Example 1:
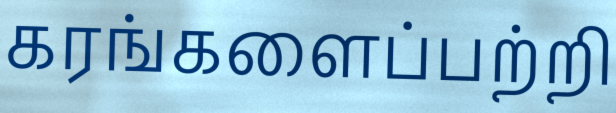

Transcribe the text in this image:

கரங்களைப்பற்றி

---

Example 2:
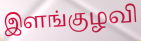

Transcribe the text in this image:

இளங்குழவி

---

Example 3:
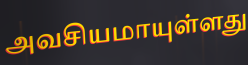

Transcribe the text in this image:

அவசியமாயுள்ளது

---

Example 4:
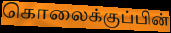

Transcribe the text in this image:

கொலைக்குப்பின்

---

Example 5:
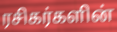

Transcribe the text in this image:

ரசிகர்களின்